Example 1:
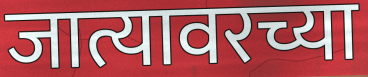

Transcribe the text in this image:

जात्यावरच्या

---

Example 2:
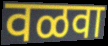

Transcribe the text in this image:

वळवा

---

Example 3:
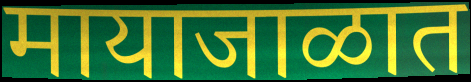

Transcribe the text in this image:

मायाजाळात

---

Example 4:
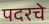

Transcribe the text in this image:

पदरचे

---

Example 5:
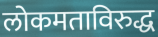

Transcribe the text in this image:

लोकमताविरुद्ध